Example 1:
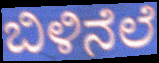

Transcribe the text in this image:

ಬಿಳಿನೆಲೆ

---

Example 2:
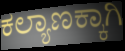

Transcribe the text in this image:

ಕಲ್ಯಾಣಕ್ಕಾಗಿ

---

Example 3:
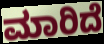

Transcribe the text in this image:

ಮಾರಿದೆ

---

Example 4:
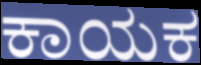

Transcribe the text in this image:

ಕಾಯಕ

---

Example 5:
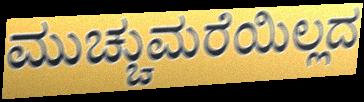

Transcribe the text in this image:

ಮುಚ್ಚುಮರೆಯಿಲ್ಲದ